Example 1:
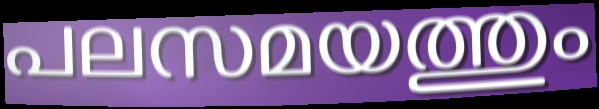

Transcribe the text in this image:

പലസമയത്തും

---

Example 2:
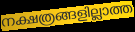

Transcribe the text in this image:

നക്ഷത്രങ്ങളില്ലാത്ത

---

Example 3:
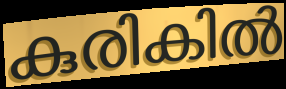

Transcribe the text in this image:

കുരികിൽ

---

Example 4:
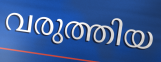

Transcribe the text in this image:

വരുത്തിയ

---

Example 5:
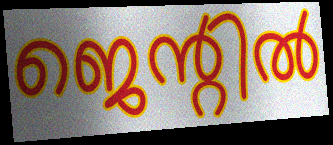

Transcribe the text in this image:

ജെന്റിൽ